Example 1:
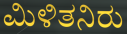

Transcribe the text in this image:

ಮಿಳಿತನಿರು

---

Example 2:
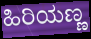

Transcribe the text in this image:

ಹಿರಿಯಣ್ಣ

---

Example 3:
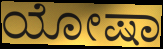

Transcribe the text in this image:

ಯೋಷಾ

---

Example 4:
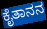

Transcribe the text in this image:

ಕೈತಾನನ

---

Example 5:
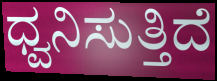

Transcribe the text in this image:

ಧ್ವನಿಸುತ್ತಿದೆ